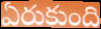
ఏరుకుంది